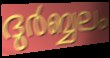
ദുർബ്ബലം